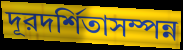
দূরদর্শিতাসম্পন্ন